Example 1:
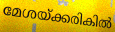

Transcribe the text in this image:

മേശയ്ക്കരികിൽ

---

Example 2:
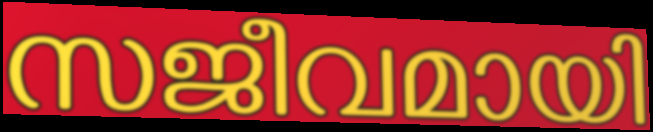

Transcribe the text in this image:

സജീവമായി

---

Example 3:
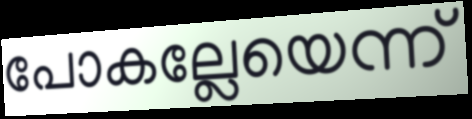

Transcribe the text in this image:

പോകല്ലേയെന്ന്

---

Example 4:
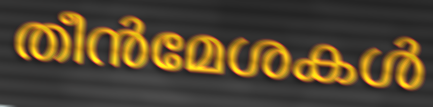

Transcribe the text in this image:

തീൻമേശകൾ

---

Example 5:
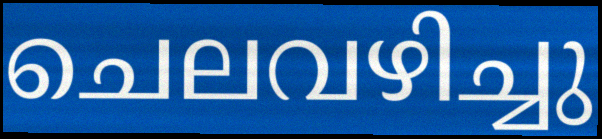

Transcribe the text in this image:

ചെലവഴിച്ചു